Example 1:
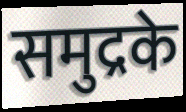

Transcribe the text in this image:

समुद्रके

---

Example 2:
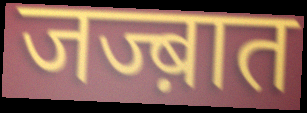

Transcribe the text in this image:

जज्ब़ात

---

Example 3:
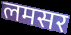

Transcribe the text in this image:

लमसर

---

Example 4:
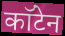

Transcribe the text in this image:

कॉटेन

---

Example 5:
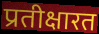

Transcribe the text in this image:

प्रतीक्षारत